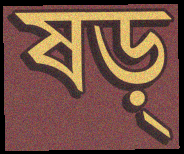
ষড়্